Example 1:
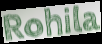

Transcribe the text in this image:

Rohila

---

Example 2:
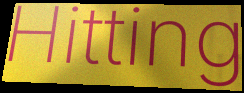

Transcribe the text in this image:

Hitting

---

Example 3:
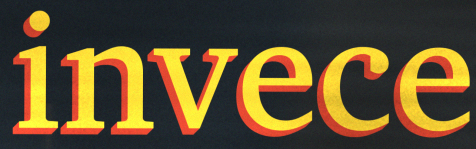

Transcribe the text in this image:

invece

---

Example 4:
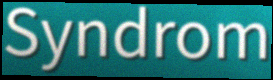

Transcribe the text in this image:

Syndrom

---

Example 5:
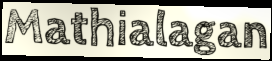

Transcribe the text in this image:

Mathialagan